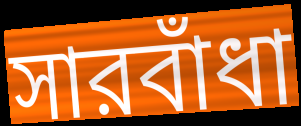
সারবাঁধা